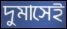
দুমাসেই